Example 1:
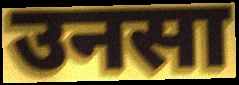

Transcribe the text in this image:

उनसा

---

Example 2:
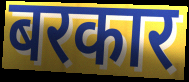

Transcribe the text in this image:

बरकार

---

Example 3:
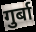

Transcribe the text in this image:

गुर्बा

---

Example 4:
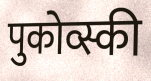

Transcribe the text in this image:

पुकोव्स्की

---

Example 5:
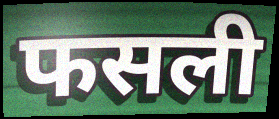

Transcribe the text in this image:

फसली